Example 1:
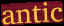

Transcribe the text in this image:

antic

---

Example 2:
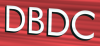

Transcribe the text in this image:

DBDC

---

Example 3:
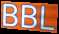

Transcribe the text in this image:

BBL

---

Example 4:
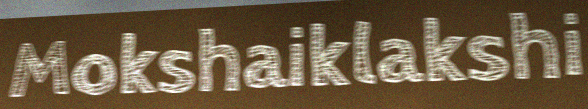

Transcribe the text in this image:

Mokshaiklakshi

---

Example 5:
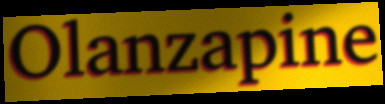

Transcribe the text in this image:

Olanzapine